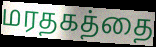
மரதகத்தை